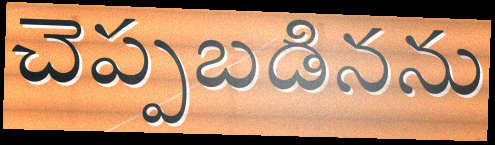
చెప్పబడినను